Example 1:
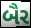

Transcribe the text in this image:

બૈર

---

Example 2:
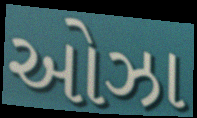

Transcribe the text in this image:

ઓઝા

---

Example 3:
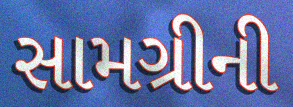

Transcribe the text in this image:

સામગ્રીની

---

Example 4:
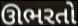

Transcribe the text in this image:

ઊભરતો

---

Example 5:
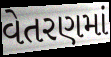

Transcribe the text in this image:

વેતરણમાં